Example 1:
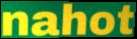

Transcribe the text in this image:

nahot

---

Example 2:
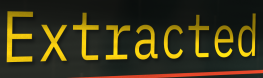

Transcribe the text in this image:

Extracted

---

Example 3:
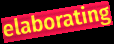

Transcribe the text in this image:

elaborating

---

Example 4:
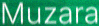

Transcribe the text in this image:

Muzara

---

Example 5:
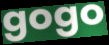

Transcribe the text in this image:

gogo